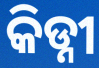
କିଡ୍ନୀ